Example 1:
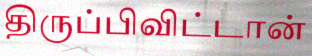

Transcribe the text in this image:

திருப்பிவிட்டான்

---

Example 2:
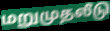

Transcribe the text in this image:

மறுமுதலீடு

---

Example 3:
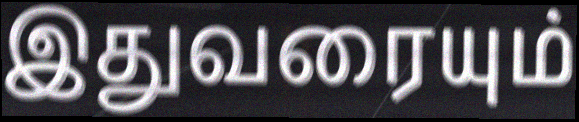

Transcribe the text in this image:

இதுவரையும்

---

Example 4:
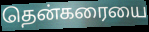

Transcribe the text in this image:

தென்கரையை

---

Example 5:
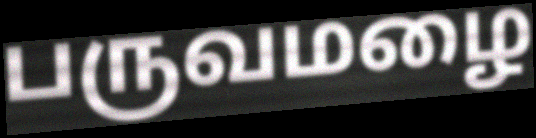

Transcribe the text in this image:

பருவமழை